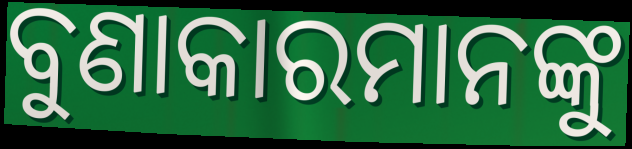
ବୁଣାକାରମାନଙ୍କୁ